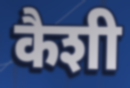
कैशी